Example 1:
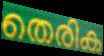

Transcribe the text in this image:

തെരിക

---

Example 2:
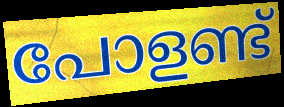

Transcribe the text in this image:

പോളണ്ട്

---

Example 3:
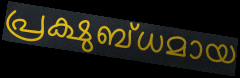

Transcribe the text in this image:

പ്രക്ഷുബ്ധമായ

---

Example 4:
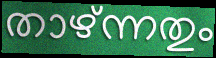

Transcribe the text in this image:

താഴ്ന്നതും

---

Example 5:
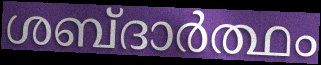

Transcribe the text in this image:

ശബ്ദാർത്ഥം